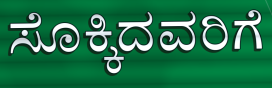
ಸೊಕ್ಕಿದವರಿಗೆ